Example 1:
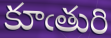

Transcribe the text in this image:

కూఁతురి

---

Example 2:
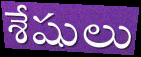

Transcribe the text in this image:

శేషులు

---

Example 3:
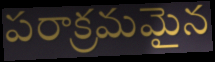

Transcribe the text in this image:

పరాక్రమమైన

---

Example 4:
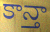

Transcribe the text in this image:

కాన్తా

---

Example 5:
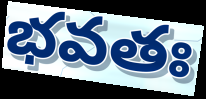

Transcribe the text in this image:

భవతః